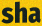
sha